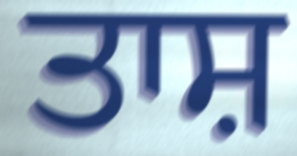
ਤਾਸ਼